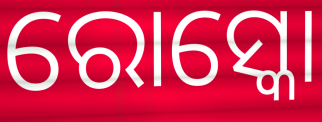
ରୋସ୍କୋ